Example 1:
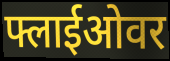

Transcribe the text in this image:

फ्लाईओवर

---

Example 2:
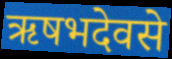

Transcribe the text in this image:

ऋषभदेवसे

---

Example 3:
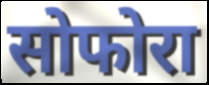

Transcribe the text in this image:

सोफोरा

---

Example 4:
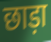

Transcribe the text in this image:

छाड़ा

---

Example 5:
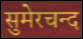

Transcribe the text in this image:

सुमेरचन्द